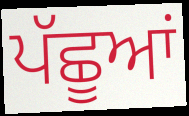
ਪੱਛੂਆਂ